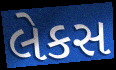
લેકસ